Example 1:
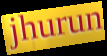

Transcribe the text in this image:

jhurun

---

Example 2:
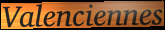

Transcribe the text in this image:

Valenciennes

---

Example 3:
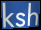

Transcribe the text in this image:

ksh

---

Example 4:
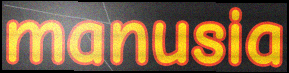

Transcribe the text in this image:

manusia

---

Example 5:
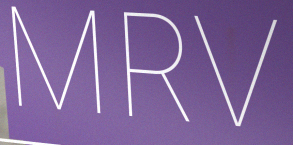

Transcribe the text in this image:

MRV